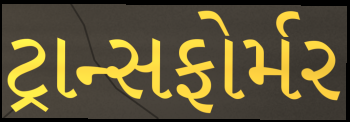
ટ્રાન્સફોર્મર